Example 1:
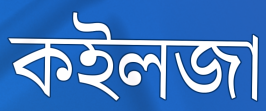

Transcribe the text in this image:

কইলজা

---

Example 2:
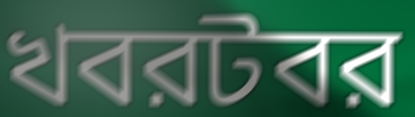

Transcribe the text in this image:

খবরটবর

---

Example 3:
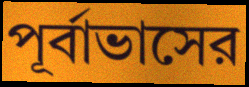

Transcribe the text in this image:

পূর্বাভাসের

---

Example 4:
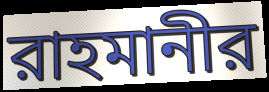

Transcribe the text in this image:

রাহমানীর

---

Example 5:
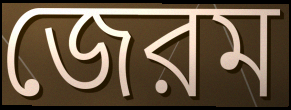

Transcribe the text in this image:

জেরম